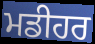
ਮਡੀਹਰ